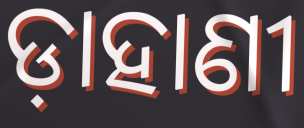
ଡ଼ାହାଣୀ